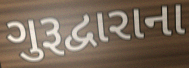
ગુરૂદ્વારાના